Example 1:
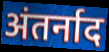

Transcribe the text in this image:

अंतर्नाद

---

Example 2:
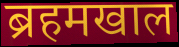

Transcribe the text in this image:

ब्रहमखाल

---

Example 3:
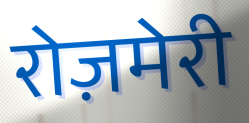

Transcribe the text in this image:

रोज़मेरी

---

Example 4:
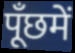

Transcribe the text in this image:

पूँछमें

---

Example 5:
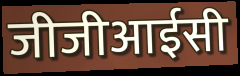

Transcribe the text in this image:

जीजीआईसी